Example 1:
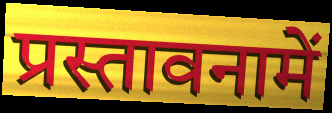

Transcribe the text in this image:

प्रस्तावनामें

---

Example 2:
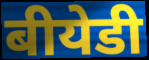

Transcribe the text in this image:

बीयेडी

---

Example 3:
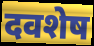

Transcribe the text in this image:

दवशेष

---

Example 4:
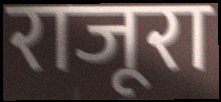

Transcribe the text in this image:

राजूरा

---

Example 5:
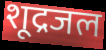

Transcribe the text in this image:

शूद्रजल